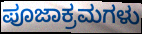
ಪೂಜಾಕ್ರಮಗಳು